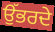
ਉੱਭਰਦੇ